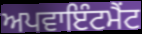
ਅਪਵਾਇੰਟਮੈਂਟ